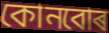
কোনবোৰ